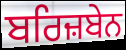
ਬਰਿਜ਼ਬੇਨ